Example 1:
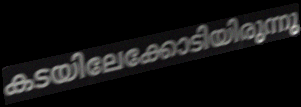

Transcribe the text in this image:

കടയിലേക്കോടിയിരുന്നു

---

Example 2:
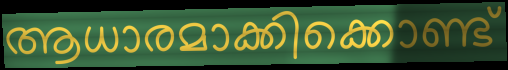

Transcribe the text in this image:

ആധാരമാക്കിക്കൊണ്ട്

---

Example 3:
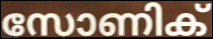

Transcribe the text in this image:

സോണിക്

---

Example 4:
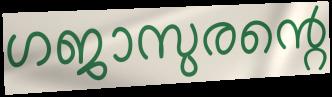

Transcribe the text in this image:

ഗജാസുരന്റെ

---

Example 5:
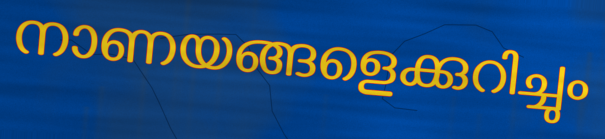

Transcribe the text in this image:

നാണയങ്ങളെക്കുറിച്ചും